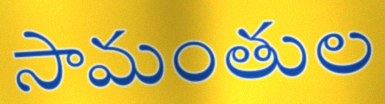
సామంతుల